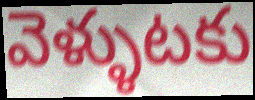
వెళ్ళుటకు